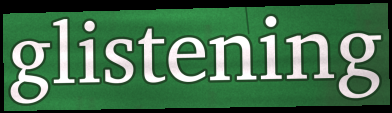
glistening